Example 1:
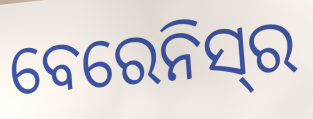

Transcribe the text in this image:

ବେରେନିସ୍‌ର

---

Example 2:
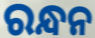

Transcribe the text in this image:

ରନ୍ଧନ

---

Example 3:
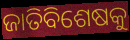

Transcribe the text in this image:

ଜାତିବିଶେଷକୁ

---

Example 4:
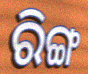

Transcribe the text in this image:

ରିଙ୍ଗ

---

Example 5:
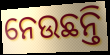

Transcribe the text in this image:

ନେଉଛନ୍ତି